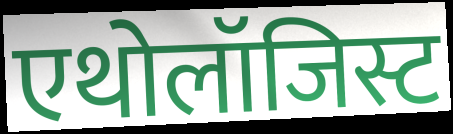
एथोलॉजिस्ट